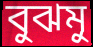
বুঝমু